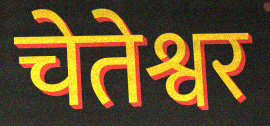
चेतेश्वर